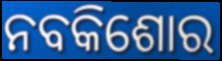
ନବକିଶୋର